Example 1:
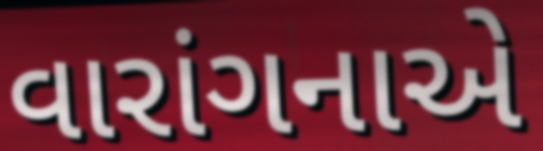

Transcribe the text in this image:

વારાંગનાએ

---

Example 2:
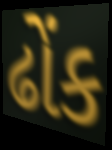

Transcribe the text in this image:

ઢોંક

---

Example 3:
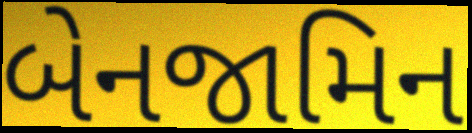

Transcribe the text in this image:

બેનજામિન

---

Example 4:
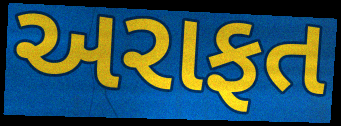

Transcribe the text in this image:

અરાફત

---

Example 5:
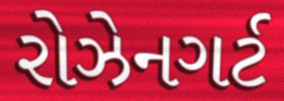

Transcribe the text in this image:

રોઝેનગર્ટ